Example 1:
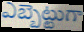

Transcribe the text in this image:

ఎబ్బెట్టుగా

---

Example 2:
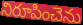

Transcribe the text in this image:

నిరూపించెను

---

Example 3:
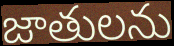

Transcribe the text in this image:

జాతులను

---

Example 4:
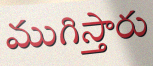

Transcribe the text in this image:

ముగిస్తారు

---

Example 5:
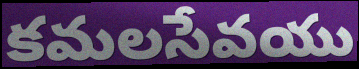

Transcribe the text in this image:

కమలసేవయు